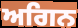
ਅਗਿਨ